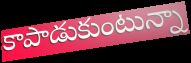
కాపాడుకుంటున్నా